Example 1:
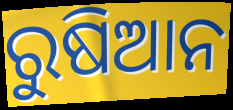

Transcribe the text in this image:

ରୁଷିଆନ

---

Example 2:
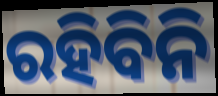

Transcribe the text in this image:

ରହିବିନି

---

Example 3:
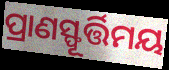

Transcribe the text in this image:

ପ୍ରାଣସ୍ଫୂର୍ତ୍ତିମୟ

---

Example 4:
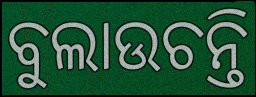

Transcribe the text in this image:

ବୁଲାଉଚନ୍ତି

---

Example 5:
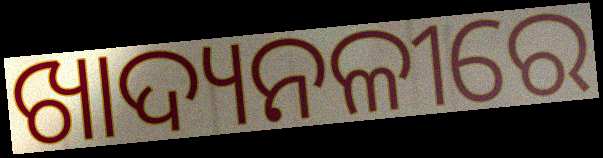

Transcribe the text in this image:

ଖାଦ୍ୟନଳୀରେ